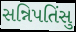
સન્નિપતિંસુ